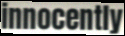
innocently